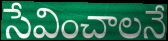
సేవించాలనే